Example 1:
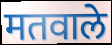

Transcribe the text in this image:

मतवाले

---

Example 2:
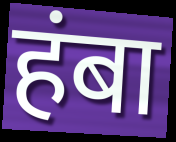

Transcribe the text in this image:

हंबा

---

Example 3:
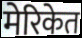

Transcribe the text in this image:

मेरिकेत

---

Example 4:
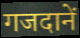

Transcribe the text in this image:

गजदानें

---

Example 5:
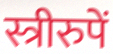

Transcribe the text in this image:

स्त्रीरुपें